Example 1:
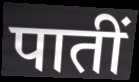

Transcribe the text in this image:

पातीं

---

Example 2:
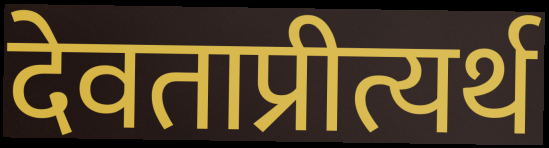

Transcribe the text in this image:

देवताप्रीत्यर्थ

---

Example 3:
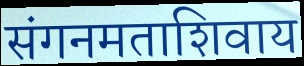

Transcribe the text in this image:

संगनमताशिवाय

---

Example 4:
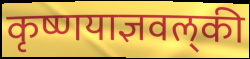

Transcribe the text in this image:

कृष्णयाज्ञवल्की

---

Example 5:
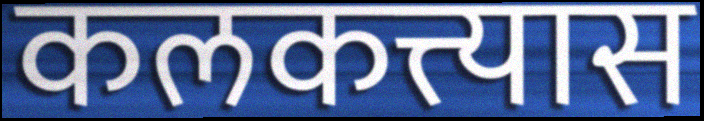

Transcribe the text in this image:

कलकत्त्यास